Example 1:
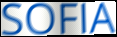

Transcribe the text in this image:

SOFIA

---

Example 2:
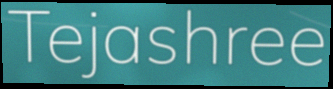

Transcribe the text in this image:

Tejashree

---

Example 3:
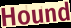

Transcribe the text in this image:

Hound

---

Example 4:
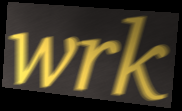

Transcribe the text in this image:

wrk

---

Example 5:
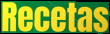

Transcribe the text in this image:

Recetas